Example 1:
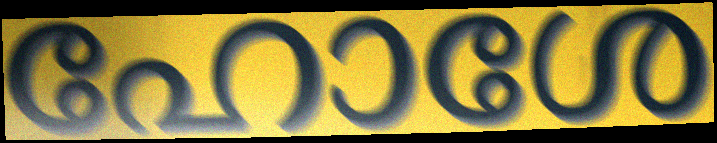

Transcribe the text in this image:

ഹോശേ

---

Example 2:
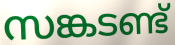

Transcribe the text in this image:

സങ്കടണ്ട്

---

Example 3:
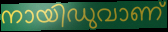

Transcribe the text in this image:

നായിഡുവാണ്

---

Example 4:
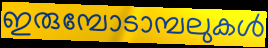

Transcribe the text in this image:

ഇരുമ്പോടാമ്പലുകൾ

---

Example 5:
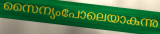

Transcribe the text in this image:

സൈന്യംപോലെയാകുന്നു